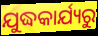
ଯୁଦ୍ଧକାର୍ଯ୍ୟରୁ